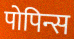
पोपिन्स